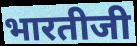
भारतीजी